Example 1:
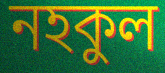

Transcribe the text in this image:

নহকুল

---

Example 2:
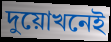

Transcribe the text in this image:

দুয়োখনেই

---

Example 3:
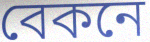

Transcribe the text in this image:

বেকনে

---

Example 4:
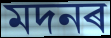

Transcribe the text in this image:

মদনৰ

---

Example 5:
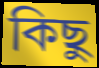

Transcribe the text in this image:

কিছু